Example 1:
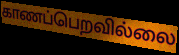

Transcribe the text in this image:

காணப்பெறவில்லை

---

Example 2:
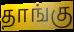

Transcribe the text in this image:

தாங்கு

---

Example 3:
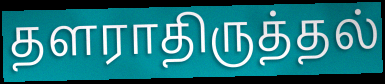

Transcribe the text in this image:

தளராதிருத்தல்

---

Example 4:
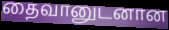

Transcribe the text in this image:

தைவானுடனான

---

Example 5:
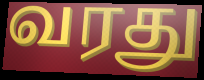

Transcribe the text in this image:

வரது